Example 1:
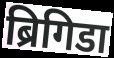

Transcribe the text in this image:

ब्रिगिडा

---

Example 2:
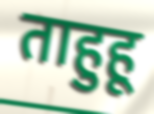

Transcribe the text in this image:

ताहुहू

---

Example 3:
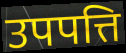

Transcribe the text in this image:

उपपत्ति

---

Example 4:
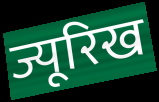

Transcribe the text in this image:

ज्यूरिख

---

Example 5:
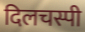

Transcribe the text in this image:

दिलचस्पी